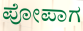
ಪೋಪಾಗ